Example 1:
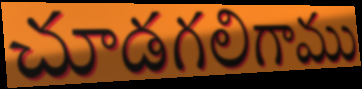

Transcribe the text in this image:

చూడగలిగాము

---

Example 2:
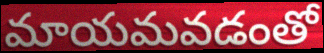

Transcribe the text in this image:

మాయమవడంతో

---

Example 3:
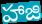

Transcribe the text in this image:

హాజి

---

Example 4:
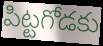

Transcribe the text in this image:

పిట్టగోడకు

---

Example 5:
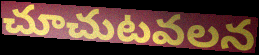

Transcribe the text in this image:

చూచుటవలన